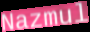
Nazmul